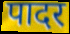
पादर